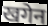
खगेन